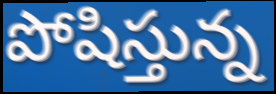
పోషిస్తున్న